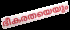
ഭീകരതയെയും